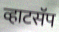
व्हाटसॅप